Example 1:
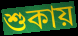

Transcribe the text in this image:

শুকায়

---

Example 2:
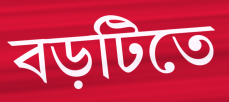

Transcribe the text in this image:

বড়টিতে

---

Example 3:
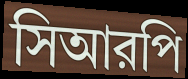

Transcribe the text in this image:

সিআরপি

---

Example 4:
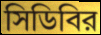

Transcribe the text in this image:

সিডিবির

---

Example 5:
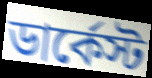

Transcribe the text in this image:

ডার্কেস্ট